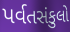
પર્વતસંકુલો